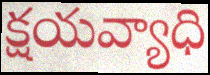
క్షయవ్యాధి